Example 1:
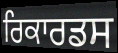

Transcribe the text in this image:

ਰਿਕਾਰਡਸ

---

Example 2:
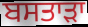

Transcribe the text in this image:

ਬਸਤਾੜਾ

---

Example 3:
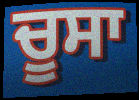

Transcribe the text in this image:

ਚੂਸਾ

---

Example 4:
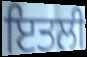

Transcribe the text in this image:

ਇਤਲੀ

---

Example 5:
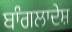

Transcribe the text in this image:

ਬਾੰਗਲਾਦੇਸ਼